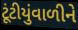
ટૂંટીયુંવાળીને